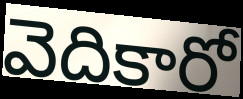
వెదికారో